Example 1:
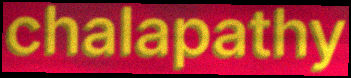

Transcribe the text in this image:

chalapathy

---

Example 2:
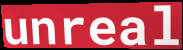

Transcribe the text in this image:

unreal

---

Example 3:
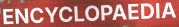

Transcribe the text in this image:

ENCYCLOPAEDIA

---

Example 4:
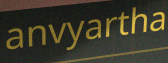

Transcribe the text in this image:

anvyartha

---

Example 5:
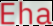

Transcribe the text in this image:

Eha